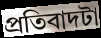
প্রতিবাদটা